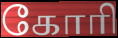
கோரி